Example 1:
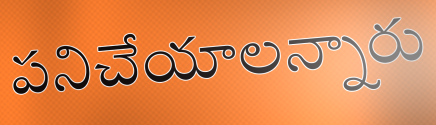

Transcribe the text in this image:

పనిచేయాలన్నారు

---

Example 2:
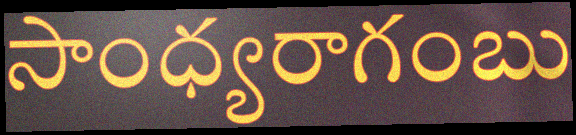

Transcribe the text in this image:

సాంధ్యరాగంబు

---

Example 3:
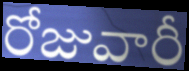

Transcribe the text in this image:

రోజువారీ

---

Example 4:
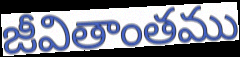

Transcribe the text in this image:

జీవితాంతము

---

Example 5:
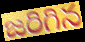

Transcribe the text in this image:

జరిగిన